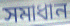
সমাধান